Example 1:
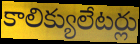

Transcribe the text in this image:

కాలిక్యులేటర్లు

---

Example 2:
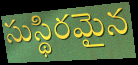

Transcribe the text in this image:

సుస్థిరమైన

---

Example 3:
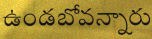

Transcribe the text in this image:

ఉండబోవన్నారు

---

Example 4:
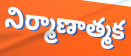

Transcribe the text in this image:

నిర్మాణాత్మక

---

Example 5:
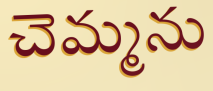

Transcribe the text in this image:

చెమ్మను